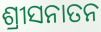
ଶ୍ରୀସନାତନ